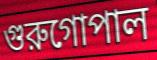
গুরুগোপাল